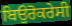
ਬਿਉਰੋਕਰੇਸੀ